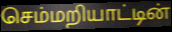
செம்மறியாட்டின்